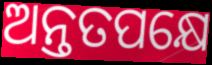
ଅନ୍ତତପକ୍ଷେ